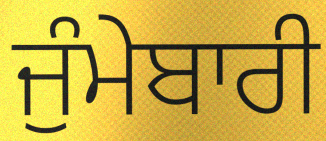
ਜੁੰਮੇਬਾਰੀ